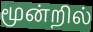
மூன்றில்